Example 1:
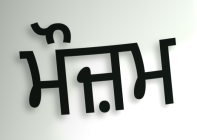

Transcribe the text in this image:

ਮੌਜ਼ਮ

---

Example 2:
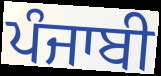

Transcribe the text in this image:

ਪੰਜਾਬੀ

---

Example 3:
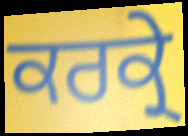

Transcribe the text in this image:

ਕਰਕ੍ਰੇ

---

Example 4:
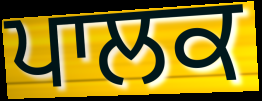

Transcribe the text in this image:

ਪਾਲਕ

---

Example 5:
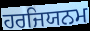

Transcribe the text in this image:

ਹਰਜਿਯਨਮ